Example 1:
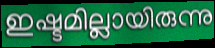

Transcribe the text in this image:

ഇഷ്ടമില്ലായിരുന്നു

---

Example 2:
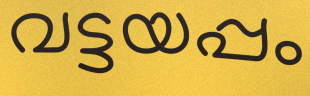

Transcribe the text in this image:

വട്ടയപ്പം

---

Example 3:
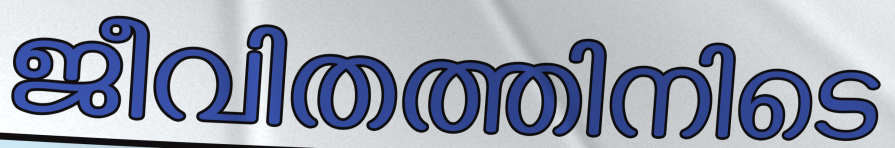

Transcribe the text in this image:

ജീവിതത്തിനിടെ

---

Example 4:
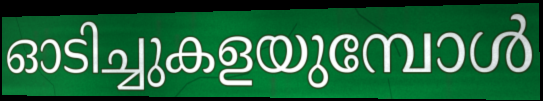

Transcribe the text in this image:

ഓടിച്ചുകളയുമ്പോൾ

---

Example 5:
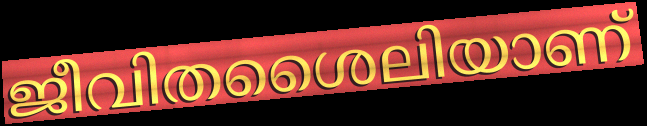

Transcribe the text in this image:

ജീവിതശൈലിയാണ്